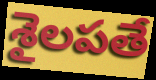
శైలపతే